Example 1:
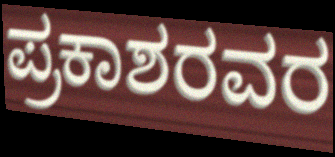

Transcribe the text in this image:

ಪ್ರಕಾಶರವರ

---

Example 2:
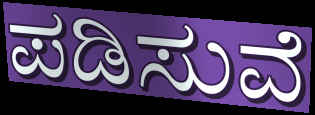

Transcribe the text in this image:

ಪಡಿಸುವೆ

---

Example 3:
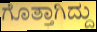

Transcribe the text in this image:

ಗೊತ್ತಾಗಿದ್ದು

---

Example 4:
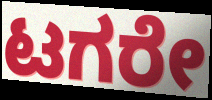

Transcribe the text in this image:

ಟಗರೇ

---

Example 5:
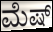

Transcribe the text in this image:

ಮೆಷ್